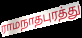
ராமநாதபுரத்து